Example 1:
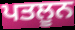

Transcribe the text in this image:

ਪਤਲੂਨ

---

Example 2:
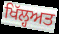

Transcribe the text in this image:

ਖਿੱਲ੍ਹਅਤ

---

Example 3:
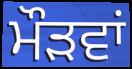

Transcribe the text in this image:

ਮੌੜਵਾਂ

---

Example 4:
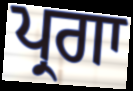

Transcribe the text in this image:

ਪ੍ਰਗਾ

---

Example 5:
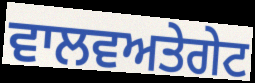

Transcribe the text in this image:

ਵਾਲਵਅਤੇਗੇਟ